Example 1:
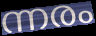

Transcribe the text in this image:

ന്നരം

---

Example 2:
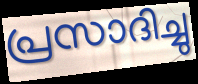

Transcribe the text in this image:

പ്രസാദിച്ചു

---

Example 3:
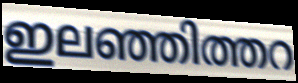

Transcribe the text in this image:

ഇലഞ്ഞിത്തറ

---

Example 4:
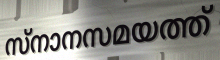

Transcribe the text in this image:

സ്നാനസമയത്ത്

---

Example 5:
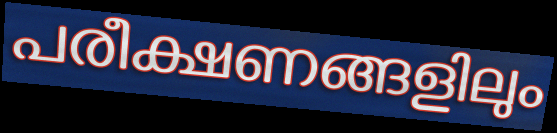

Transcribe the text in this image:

പരീക്ഷണങ്ങളിലും